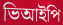
ভিআইপি